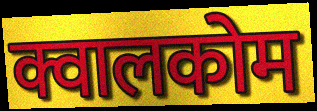
क्वालकोम